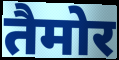
तैमोर